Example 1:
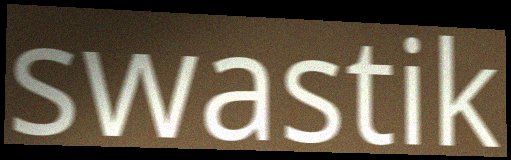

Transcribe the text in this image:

swastik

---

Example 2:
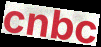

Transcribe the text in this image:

cnbc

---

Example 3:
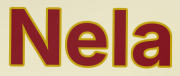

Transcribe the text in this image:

Nela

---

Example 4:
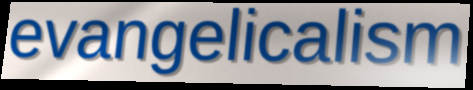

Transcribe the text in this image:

evangelicalism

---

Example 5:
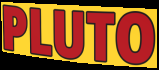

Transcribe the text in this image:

PLUTO